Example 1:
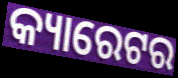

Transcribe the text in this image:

କ୍ୟାରେଟର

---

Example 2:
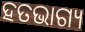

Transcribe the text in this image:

ହତଭାଗ୍ୟ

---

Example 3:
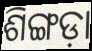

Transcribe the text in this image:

ଶିଙ୍ଗଡ଼ା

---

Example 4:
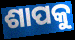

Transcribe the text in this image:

ଶାପକୁ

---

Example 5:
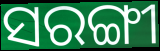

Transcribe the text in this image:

ସରଙ୍ଗୀ